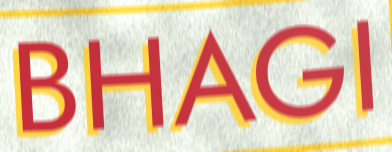
BHAGI